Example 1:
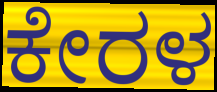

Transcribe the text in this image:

ಕೇರಳ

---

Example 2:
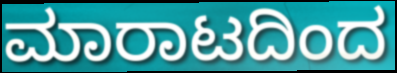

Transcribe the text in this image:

ಮಾರಾಟದಿಂದ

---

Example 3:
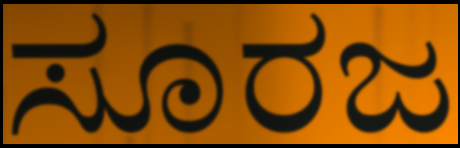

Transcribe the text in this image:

ಸೂರಜ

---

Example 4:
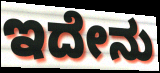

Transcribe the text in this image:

ಇದೇನು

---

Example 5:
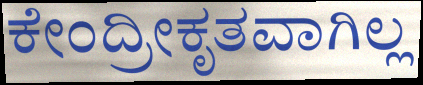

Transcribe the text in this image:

ಕೇಂದ್ರೀಕೃತವಾಗಿಲ್ಲ